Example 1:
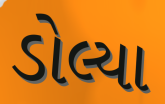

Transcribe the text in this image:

ડોલ્યા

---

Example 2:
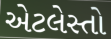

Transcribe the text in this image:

એટલેસ્તો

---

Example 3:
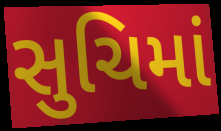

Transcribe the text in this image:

સુચિમાં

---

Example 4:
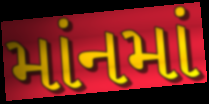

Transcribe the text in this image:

માંનમાં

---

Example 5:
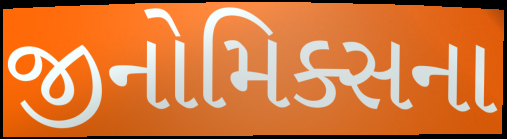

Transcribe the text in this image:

જીનોમિક્સના